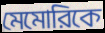
মেমোরিকে